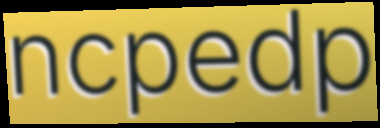
ncpedp